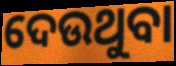
ଦେଉଥୁବା